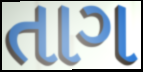
તાગ